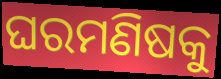
ଘରମଣିଷକୁ